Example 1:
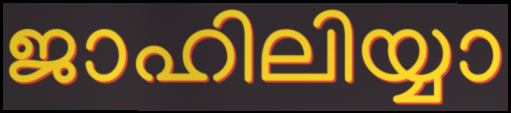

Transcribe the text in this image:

ജാഹിലിയ്യാ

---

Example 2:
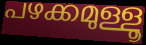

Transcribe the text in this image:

പഴക്കമുള്ളൂ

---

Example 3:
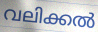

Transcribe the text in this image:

വലിക്കൽ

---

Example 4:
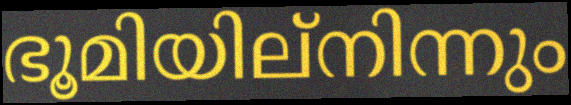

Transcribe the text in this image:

ഭൂമിയില്നിന്നും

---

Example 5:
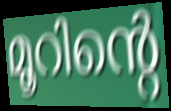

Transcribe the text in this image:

മൂറിന്റെ